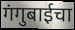
गंगुबाईचा